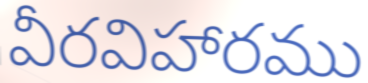
వీరవిహారము